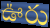
ఊరు